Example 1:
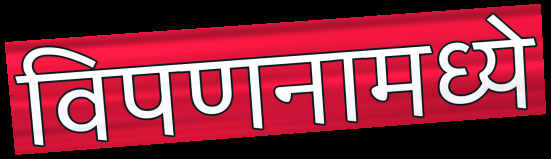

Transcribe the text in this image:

विपणनामध्ये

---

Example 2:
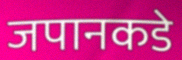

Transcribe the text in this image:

जपानकडे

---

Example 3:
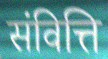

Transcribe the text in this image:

संवित्ति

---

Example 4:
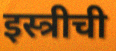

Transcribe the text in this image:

इस्त्रीची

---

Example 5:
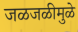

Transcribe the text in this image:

जळजळीमुळे